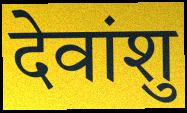
देवांशु